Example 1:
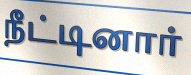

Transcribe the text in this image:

நீட்டினார்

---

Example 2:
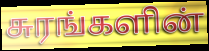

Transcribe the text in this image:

சுரங்களின்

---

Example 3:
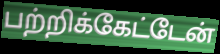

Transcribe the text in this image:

பற்றிக்கேட்டேன்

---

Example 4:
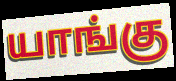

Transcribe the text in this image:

யாங்கு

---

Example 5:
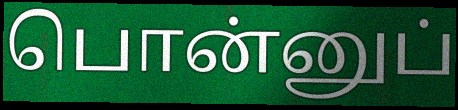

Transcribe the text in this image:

பொன்னுப்